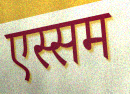
एस्सम